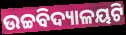
ଉଚ୍ଚବିଦ୍ୟାଳୟଟି